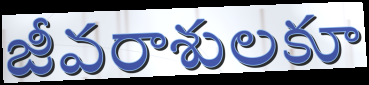
జీవరాశులకూ